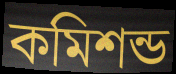
কমিশন্ড